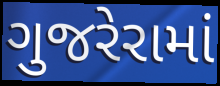
ગુજરેરામાં